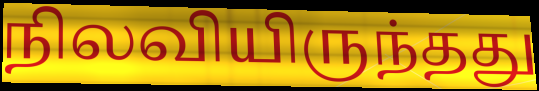
நிலவியிருந்தது